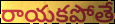
రాయకపోతే